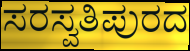
ಸರಸ್ವತಿಪುರದ